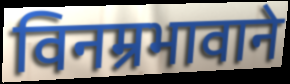
विनम्रभावाने